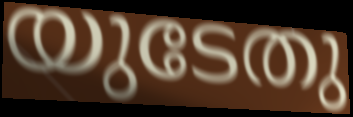
യുടേതു